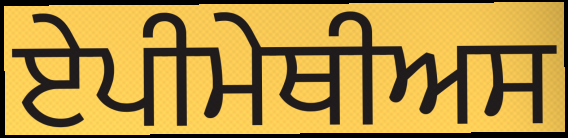
ਏਪੀਮੇਥੀਅਸ